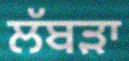
ਲੱਬੜਾ